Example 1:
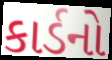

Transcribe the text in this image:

કાર્ડનો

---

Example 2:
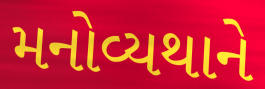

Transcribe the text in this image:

મનોવ્યથાને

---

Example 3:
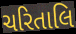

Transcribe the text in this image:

ચરિતાલિ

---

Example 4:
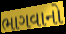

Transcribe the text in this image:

ભાગવાનો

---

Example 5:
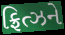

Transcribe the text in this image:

ફ્રિત્ઝને